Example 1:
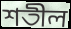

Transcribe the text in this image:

শতীল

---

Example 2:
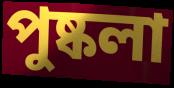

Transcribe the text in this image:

পুষ্কলা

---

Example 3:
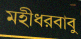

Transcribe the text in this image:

মহীধরবাবু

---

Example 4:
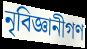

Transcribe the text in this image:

নৃবিজ্ঞানীগণ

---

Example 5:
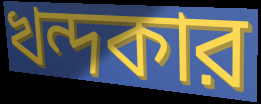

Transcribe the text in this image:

খন্দকার